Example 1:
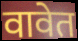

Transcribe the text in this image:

वावेत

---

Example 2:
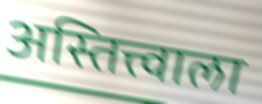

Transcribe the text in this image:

अस्तित्त्वाला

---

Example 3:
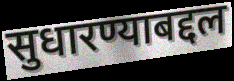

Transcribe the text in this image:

सुधारण्याबद्दल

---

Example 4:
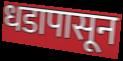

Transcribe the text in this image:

धडापासून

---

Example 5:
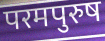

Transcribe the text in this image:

परमपुरुष